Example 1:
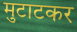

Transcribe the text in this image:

मुटाटकर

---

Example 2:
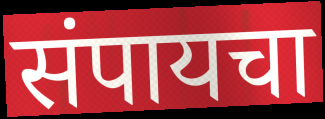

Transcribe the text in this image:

संपायचा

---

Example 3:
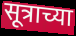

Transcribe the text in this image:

सूत्राच्या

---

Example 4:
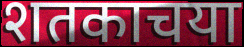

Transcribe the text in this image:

शतकाचया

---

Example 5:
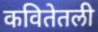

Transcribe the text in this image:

कवितेतली